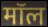
मॉल